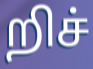
றிச்